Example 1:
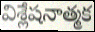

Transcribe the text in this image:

విశ్లేషనాత్మక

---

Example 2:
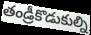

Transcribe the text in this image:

తండ్రీకొడుకుల్ని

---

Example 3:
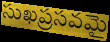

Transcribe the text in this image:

సుఖప్రసవమై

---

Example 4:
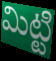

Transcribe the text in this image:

మిట్టి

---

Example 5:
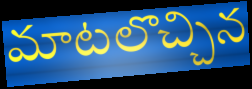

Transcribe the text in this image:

మాటలొచ్చిన